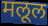
मलूल